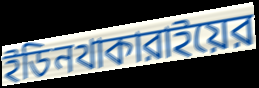
ইডিনথাকারাইয়ের